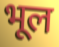
भूल